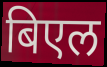
बिएल